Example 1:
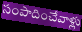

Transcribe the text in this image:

సంపాదించేవాళ్లు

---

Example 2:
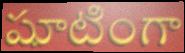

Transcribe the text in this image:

షూటింగా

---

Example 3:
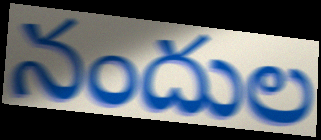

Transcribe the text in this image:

నందుల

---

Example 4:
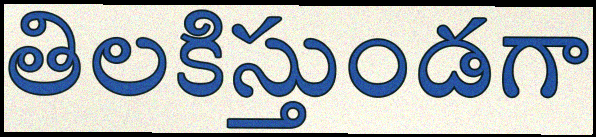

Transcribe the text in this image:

తిలకిస్తుండగా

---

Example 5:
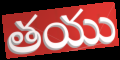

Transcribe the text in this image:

తయు